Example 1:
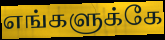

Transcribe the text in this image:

எங்களுக்கே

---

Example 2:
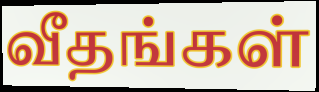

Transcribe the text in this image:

வீதங்கள்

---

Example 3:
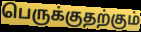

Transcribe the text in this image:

பெருக்குதற்கும்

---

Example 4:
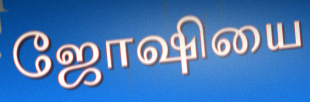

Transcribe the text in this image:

ஜோஷியை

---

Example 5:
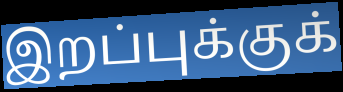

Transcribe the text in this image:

இறப்புக்குக்